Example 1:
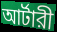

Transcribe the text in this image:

আর্টারী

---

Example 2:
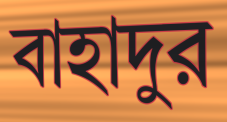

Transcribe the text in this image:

বাহাদুর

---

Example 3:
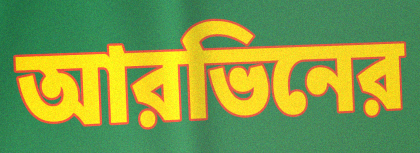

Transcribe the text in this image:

আরভিনের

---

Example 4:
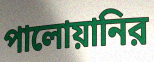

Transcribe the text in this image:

পালোয়ানির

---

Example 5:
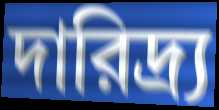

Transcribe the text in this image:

দারিদ্র্য